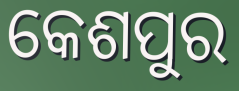
କେଶପୁର